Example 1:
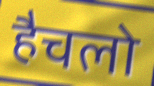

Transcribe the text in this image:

हैचलो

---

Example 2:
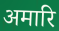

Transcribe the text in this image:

अमारि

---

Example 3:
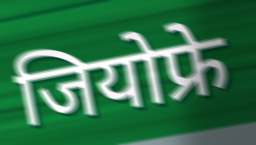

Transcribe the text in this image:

जियोफ्रे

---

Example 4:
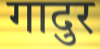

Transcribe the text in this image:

गादुर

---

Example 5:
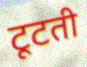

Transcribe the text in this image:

टूटती